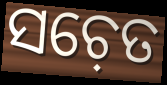
ସଚ଼େତ